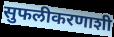
सुफलीकरणाशी